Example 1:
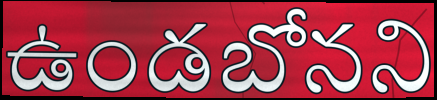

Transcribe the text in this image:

ఉండబోనని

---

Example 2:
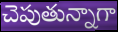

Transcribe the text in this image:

చెపుతున్నాగా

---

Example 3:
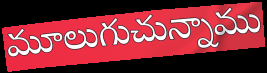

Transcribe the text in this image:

మూలుగుచున్నాము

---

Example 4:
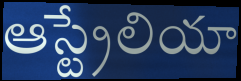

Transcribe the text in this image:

ఆస్ట్రేలియా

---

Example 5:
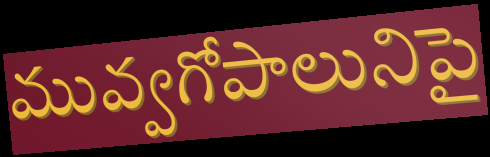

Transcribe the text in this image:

మువ్వగోపాలునిపై